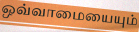
ஒவ்வாமையையும்